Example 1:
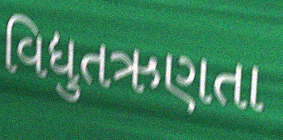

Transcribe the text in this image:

વિદ્યુતઋણતા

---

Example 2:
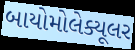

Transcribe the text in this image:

બાયોમોલેક્યૂલર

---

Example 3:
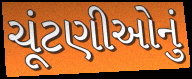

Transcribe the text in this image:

ચૂંટણીઓનું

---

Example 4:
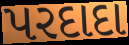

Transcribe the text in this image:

પરદાદા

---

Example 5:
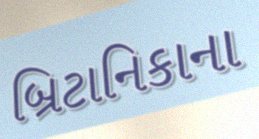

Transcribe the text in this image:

બ્રિટાનિકાના